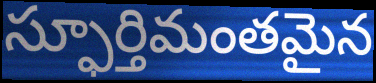
స్ఫూర్తిమంతమైన